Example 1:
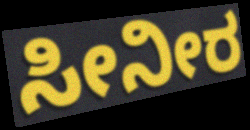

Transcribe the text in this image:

ಸೀನೀರ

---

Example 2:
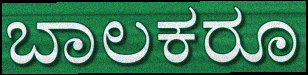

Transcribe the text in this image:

ಬಾಲಕರೂ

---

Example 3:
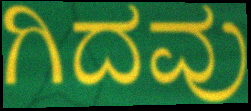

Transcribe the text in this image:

ಗಿದವು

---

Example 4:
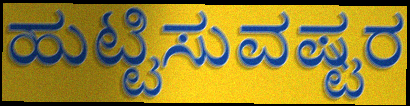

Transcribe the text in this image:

ಹುಟ್ಟಿಸುವಷ್ಟರ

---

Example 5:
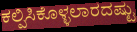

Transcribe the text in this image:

ಕಲ್ಪಿಸಿಕೊಳ್ಳಲಾರದಷ್ಟು